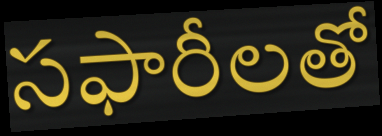
సఫారీలతో